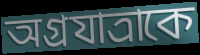
অগ্রযাত্রাকে